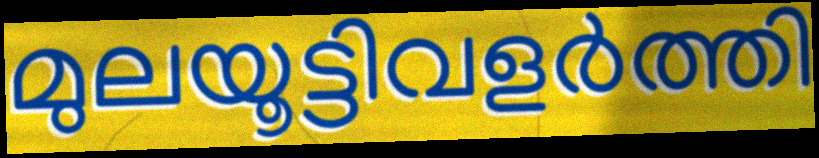
മുലയൂട്ടിവളർത്തി